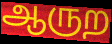
ஆருற